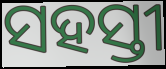
ସହସ୍ତୀ